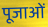
पूजाओं